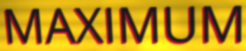
MAXIMUM